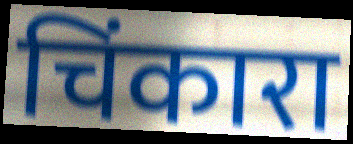
चिंकारा